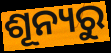
ଶୂନ୍ୟରୁ